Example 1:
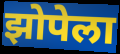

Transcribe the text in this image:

झोपेला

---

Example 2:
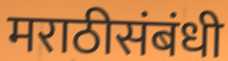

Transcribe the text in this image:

मराठीसंबंधी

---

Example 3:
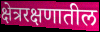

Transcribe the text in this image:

क्षेत्ररक्षणातील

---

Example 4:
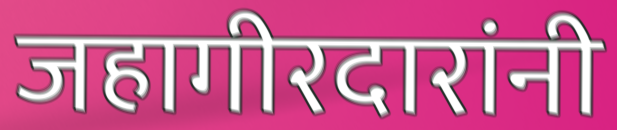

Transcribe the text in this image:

जहागीरदारांनी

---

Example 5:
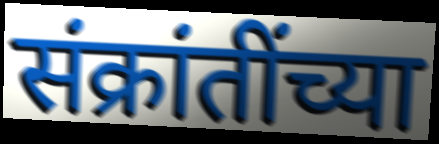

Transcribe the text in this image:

संक्रांतींच्या